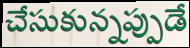
చేసుకున్నప్పుడే